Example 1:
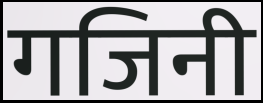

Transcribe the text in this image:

गजिनी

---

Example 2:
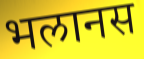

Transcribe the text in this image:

भलानस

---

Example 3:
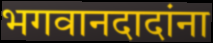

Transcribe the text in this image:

भगवानदादांना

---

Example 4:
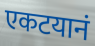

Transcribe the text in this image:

एकटयानं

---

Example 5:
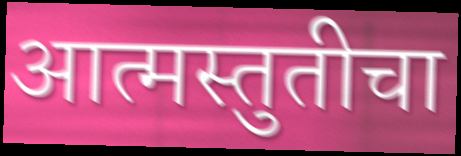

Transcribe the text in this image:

आत्मस्तुतीचा